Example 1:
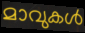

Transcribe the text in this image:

മാവുകൾ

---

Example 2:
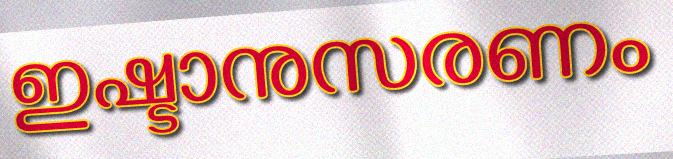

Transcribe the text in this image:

ഇഷ്ടാനുസരണം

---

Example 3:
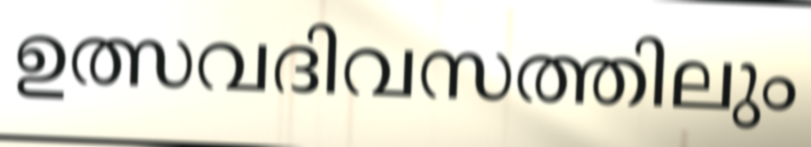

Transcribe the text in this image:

ഉത്സവദിവസത്തിലും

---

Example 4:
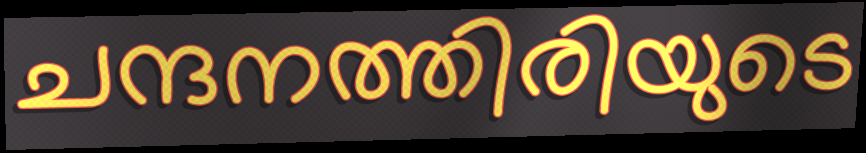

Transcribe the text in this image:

ചന്ദനത്തിരിയുടെ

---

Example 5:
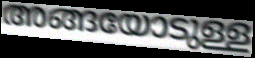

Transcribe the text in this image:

അങ്ങയോടുള്ള